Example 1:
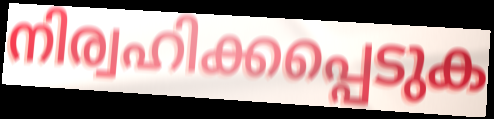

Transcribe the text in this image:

നിര്വഹിക്കപ്പെടുക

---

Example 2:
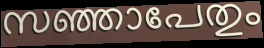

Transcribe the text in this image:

സഞ്ഞാപേതും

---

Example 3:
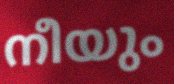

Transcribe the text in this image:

നീയും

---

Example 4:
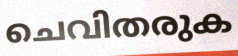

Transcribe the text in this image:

ചെവിതരുക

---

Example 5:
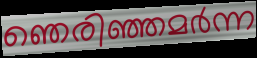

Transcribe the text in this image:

ഞെരിഞ്ഞമർന്ന